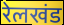
रेलखंड